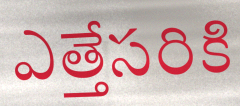
ఎత్తేసరికి